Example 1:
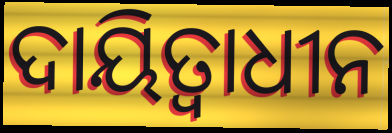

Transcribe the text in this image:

ଦାୟିତ୍ୱାଧୀନ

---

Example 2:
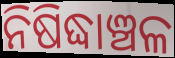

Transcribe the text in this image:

ନିଷିଦ୍ଧାଞ୍ଚଳ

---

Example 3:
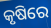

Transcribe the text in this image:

କୃଷିରେ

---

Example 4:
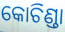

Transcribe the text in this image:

କୋଚିଣ୍ଡା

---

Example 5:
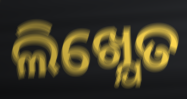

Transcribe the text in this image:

ଲିଖ୍ଯେତ